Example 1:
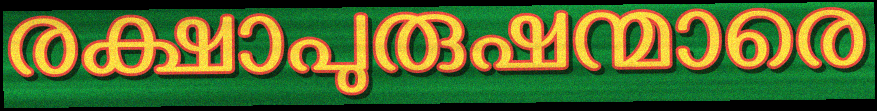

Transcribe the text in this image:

രക്ഷാപുരുഷന്മാരെ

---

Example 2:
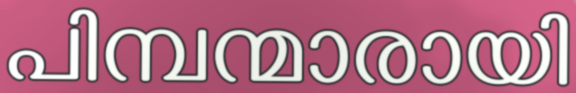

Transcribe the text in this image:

പിമ്പന്മാരായി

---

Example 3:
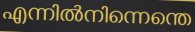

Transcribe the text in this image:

എന്നിൽനിന്നെന്തെ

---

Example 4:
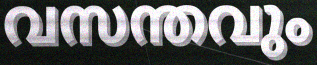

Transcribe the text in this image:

വസന്തവും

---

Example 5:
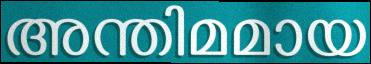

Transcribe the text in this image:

അന്തിമമായ